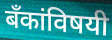
बँकांविषयी